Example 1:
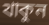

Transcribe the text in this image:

থাকুন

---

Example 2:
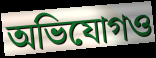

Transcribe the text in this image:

অভিযোগও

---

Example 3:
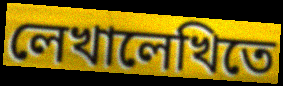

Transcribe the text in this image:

লেখালেখিতে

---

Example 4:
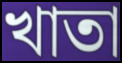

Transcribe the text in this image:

খাতা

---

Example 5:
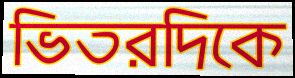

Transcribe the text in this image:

ভিতরদিকে